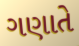
ગણાતે